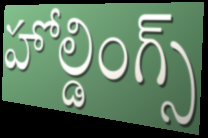
హోల్డింగ్స్